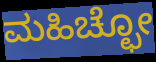
ಮಹಿಚ್ಛೋ